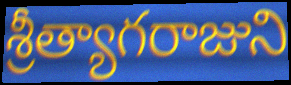
శ్రీత్యాగరాజుని